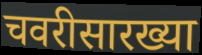
चवरीसारख्या